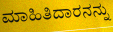
ಮಾಹಿತಿದಾರನನ್ನು